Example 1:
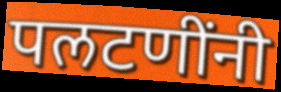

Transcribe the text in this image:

पलटणींनी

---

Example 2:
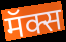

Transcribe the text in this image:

मॅक्स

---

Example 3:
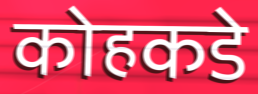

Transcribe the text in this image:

कोहकडे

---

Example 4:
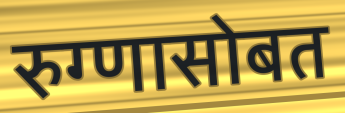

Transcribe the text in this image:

रुग्णासोबत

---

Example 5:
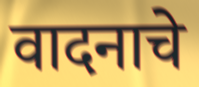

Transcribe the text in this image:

वादनाचे